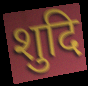
शुदि